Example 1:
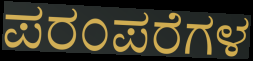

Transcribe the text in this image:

ಪರಂಪರೆಗಳ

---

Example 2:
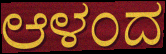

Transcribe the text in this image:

ಆಳಂದ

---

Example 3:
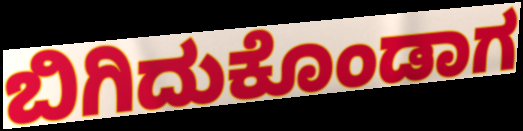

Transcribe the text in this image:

ಬಿಗಿದುಕೊಂಡಾಗ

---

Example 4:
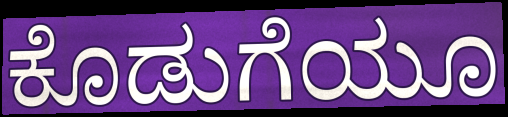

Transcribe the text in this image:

ಕೊಡುಗೆಯೂ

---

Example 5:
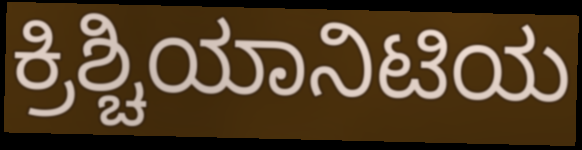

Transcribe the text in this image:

ಕ್ರಿಶ್ಚಿಯಾನಿಟಿಯ